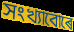
সংখ্যাবোৰে